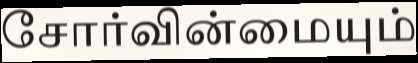
சோர்வின்மையும்